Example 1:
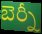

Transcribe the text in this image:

బెర్నీ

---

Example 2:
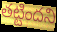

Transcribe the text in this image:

తట్టిందని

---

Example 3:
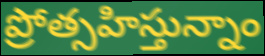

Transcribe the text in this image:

ప్రోత్సహిస్తున్నాం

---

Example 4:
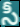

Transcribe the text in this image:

సీ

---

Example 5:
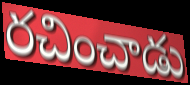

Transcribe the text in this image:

రచించాడు